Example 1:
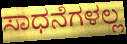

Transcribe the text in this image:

ಸಾಧನೆಗಳಲ್ಲ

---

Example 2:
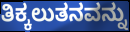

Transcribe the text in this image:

ತಿಕ್ಕಲುತನವನ್ನು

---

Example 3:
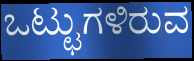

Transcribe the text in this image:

ಒಟ್ಟುಗಳಿರುವ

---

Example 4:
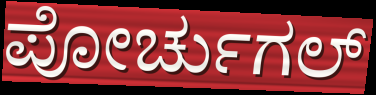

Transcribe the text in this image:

ಪೋರ್ಚುಗಲ್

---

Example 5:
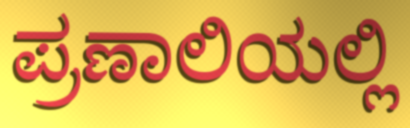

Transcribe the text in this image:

ಪ್ರಣಾಲಿಯಲ್ಲಿ